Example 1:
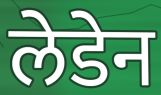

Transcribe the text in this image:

लेडेन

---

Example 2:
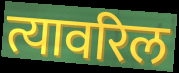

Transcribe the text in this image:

त्यावरिल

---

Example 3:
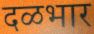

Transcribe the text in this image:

दळभार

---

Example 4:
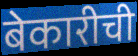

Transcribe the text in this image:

बेकारीची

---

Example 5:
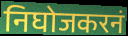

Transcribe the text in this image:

निघोजकरनं